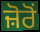
ਜ਼ੋਰੋਂ